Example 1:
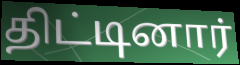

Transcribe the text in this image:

திட்டினார்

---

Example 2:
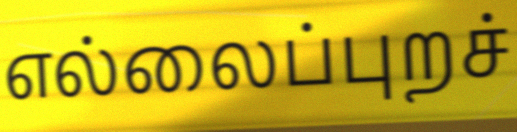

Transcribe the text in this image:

எல்லைப்புறச்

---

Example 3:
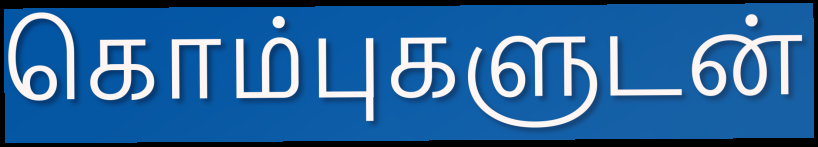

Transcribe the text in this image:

கொம்புகளுடன்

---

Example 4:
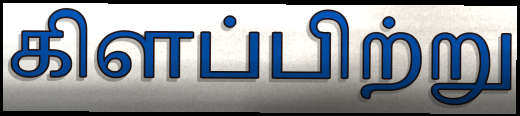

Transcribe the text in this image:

கிளப்பிற்று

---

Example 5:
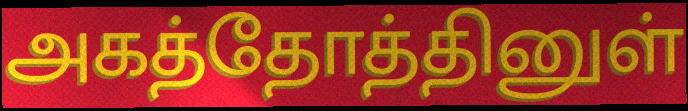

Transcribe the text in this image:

அகத்தோத்தினுள்